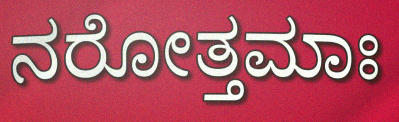
ನರೋತ್ತಮಾಃ